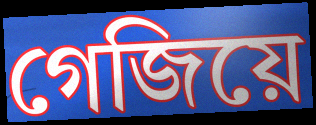
গেজিয়ে